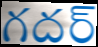
గదర్